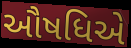
ઔષધિએ